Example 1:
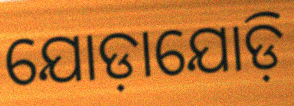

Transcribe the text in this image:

ଯୋଡ଼ାଯୋଡ଼ି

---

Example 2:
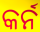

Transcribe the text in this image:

କର୍ନ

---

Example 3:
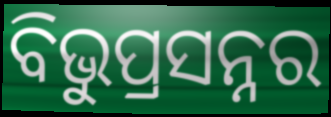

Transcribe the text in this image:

ବିଭୁପ୍ରସନ୍ନର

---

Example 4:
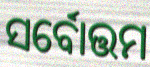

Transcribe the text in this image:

ସର୍ବୋତ୍ତମ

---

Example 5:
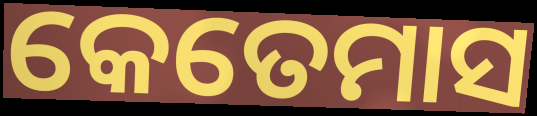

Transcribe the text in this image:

କେତେମାସ